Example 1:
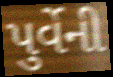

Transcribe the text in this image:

પુર્વેની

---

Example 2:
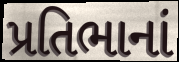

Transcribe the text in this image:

પ્રતિભાનાં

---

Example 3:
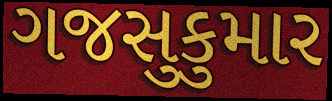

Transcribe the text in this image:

ગજસુકુમાર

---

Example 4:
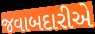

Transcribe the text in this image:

જવાબદારીએ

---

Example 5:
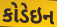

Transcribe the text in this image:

કોડેઇન